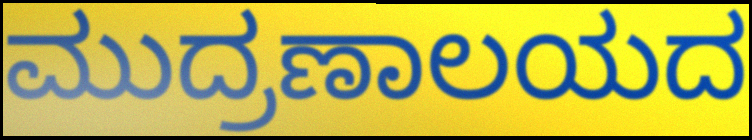
ಮುದ್ರಣಾಲಯದ